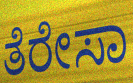
ತೆರೇಸಾ